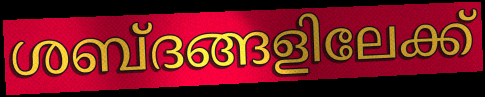
ശബ്ദങ്ങളിലേക്ക്